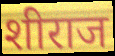
शीराज